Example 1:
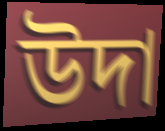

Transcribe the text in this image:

উদা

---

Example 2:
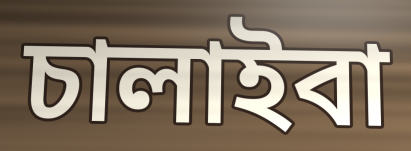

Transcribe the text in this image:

চালাইবা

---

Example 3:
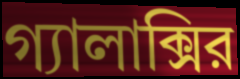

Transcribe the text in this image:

গ্যালাক্সির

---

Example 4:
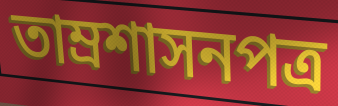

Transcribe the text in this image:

তাম্রশাসনপত্র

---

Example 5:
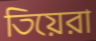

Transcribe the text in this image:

তিয়েরা